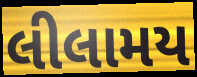
લીલામય